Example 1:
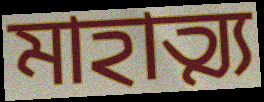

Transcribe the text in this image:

মাহাত্ম্য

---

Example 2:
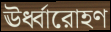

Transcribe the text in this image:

ঊর্ধ্বারোহণ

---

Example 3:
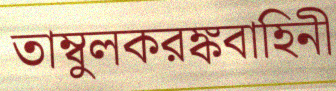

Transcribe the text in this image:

তাম্বুলকরঙ্কবাহিনী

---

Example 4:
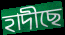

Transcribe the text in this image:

হাদীছে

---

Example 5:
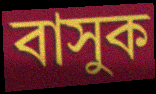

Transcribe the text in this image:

বাসুক